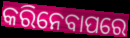
କରିନେବାପରେ